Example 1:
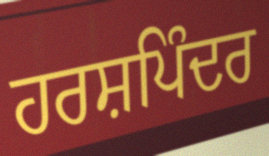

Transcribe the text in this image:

ਹਰਸ਼ਪਿੰਦਰ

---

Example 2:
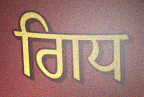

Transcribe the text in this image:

ਗਿਧ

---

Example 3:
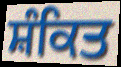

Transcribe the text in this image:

ਸ਼ੰਕਿਤ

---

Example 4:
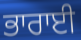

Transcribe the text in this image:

ਭਾਰਾਈ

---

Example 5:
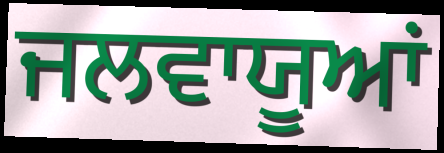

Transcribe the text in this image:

ਜਲਵਾਯੂਆਂ